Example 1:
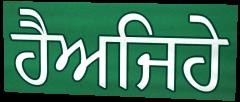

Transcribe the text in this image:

ਹੈਅਜਿਹੇ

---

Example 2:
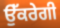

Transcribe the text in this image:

ਉੱਕਰੇਗੀ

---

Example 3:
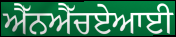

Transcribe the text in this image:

ਐੱਨਐੱਚਏਆਈ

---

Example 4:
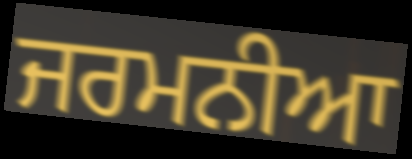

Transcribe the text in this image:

ਜਰਮਨੀਆ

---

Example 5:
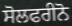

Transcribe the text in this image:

ਸੋਲਫਰੀਨੋ